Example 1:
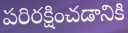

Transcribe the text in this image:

పరిరక్షించడానికి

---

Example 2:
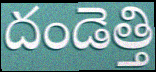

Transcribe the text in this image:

దండెత్తి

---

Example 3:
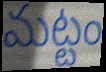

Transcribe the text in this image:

మట్టం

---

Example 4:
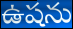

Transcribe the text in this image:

ఉషను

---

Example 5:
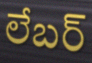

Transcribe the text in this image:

లేబర్